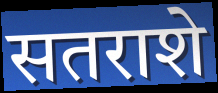
सतराशे